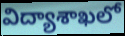
విద్యాశాఖలో